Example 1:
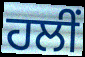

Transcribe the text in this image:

ਹਲੀਂ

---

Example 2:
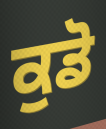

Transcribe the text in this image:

ਕੁਡੋ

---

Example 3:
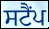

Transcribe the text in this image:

ਸਟੈਂਪ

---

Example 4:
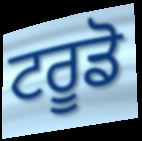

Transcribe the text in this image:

ਟਰੂਡੋ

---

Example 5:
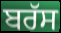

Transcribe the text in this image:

ਬਰੱਸ